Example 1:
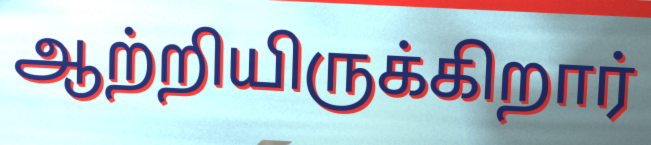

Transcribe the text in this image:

ஆற்றியிருக்கிறார்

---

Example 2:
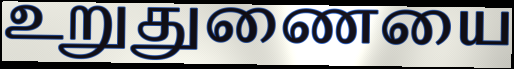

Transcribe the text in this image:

உறுதுணையை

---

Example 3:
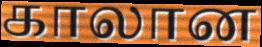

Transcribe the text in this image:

காலான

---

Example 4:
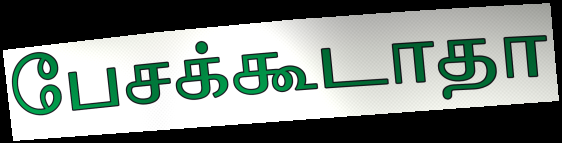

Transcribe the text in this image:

பேசக்கூடாதா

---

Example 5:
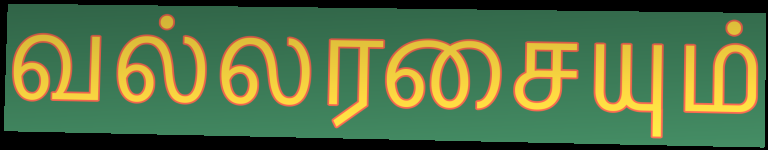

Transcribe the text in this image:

வல்லரசையும்